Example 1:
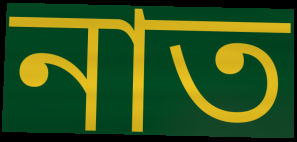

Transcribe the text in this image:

নাত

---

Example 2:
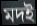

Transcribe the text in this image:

মদই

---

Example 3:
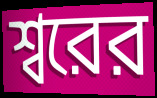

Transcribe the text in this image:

শ্বরের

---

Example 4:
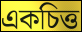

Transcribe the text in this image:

একচিত্ত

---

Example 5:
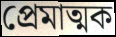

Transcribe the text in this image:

প্রেমাত্মক